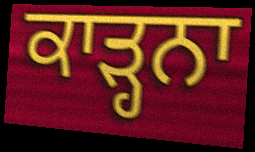
ਕਾੜ੍ਹਨਾ